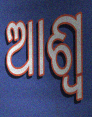
ଆଶ୍ୱ